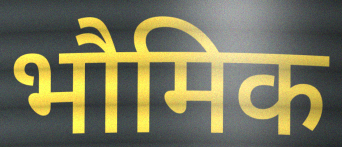
भौमिक